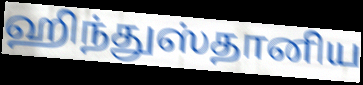
ஹிந்துஸ்தானிய